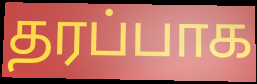
தரப்பாக